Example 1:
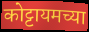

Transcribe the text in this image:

कोट्टायमच्या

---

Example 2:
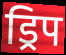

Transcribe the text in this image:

ड्रिप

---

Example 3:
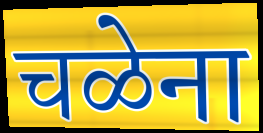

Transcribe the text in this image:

चळेना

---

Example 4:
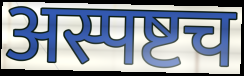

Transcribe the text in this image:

अस्पष्टच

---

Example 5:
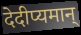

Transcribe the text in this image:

देदीप्यमान्